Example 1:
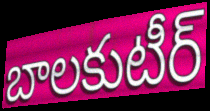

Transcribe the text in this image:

బాలకుటీర్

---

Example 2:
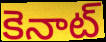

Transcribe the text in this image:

కెనాట్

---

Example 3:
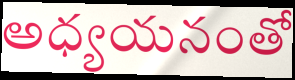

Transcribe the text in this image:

అధ్యయనంతో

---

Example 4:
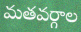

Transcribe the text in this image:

మతవర్గాల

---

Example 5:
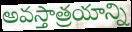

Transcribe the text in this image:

అవస్తాత్రయాన్ని